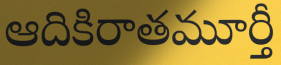
ఆదికిరాతమూర్తీ